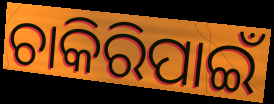
ଚାକିରିପାଇଁ